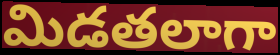
మిడతలాగా